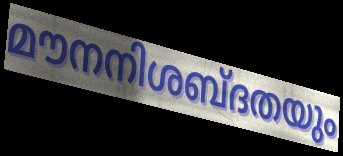
മൗനനിശബ്ദതയും